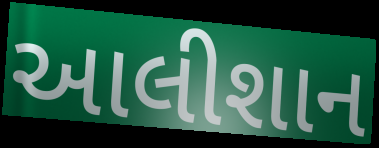
આલીશાન